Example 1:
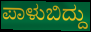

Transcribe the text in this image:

ಪಾಳುಬಿದ್ದು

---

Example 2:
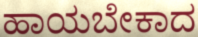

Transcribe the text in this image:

ಹಾಯಬೇಕಾದ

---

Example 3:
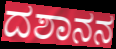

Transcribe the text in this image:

ದಶಾನನ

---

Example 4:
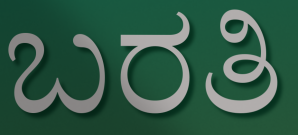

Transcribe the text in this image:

ಬರತಿ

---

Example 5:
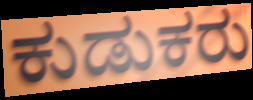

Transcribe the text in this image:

ಕುಡುಕರು